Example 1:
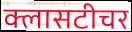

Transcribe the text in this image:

क्लासटीचर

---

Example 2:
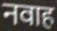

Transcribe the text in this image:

नवाह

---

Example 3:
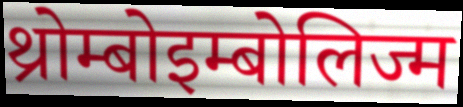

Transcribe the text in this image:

थ्रोम्बोइम्बोलिज्म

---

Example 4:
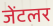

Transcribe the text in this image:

जेंटलर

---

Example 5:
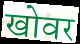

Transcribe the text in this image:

खोवर